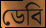
ডেবি